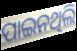
ପାଇନଥିଲି